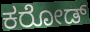
ಕರೋಡ್